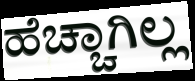
ಹೆಚ್ಚಾಗಿಲ್ಲ